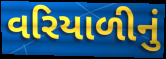
વરિયાળીનું